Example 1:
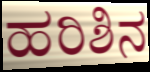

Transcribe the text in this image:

ಹರಿಶಿನ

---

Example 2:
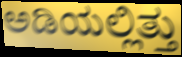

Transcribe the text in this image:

ಅಡಿಯಲ್ಲಿತ್ತು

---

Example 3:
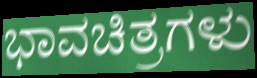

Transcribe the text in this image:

ಭಾವಚಿತ್ರಗಳು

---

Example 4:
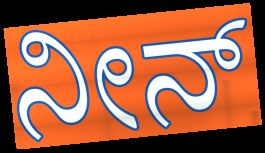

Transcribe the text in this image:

ನೀನ್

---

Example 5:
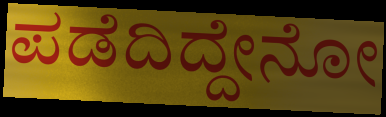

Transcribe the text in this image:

ಪಡೆದಿದ್ದೇನೋ